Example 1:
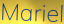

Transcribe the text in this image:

Mariel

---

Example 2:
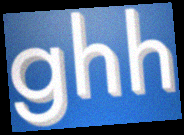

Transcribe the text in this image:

ghh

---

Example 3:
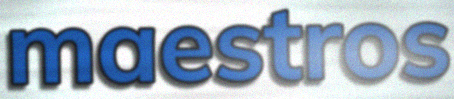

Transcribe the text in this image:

maestros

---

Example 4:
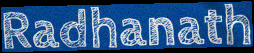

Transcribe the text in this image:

Radhanath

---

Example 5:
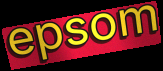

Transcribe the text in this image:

epsom